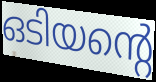
ഒടിയന്റെ